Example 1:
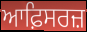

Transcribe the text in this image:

ਆਫ਼ਿਸਰਜ਼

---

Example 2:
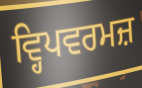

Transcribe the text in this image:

ਵ੍ਹਿਪਵਰਮਜ਼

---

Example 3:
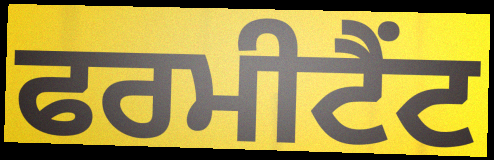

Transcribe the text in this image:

ਫਰਮੀਟੈਂਟ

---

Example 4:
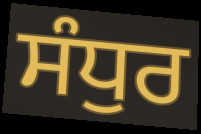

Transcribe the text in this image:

ਸੰਧੁਰ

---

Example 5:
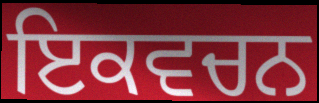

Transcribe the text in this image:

ਇਕਵਚਨ